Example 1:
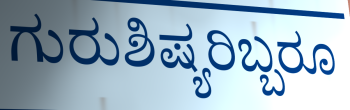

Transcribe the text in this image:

ಗುರುಶಿಷ್ಯರಿಬ್ಬರೂ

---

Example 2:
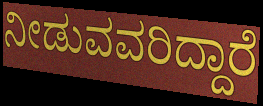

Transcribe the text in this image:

ನೀಡುವವರಿದ್ದಾರೆ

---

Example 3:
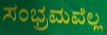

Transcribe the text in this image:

ಸಂಭ್ರಮವೆಲ್ಲ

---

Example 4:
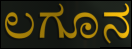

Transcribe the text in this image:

ಲಗೂನ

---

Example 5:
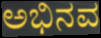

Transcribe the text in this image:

ಅಭಿನವ